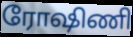
ரோஷிணி